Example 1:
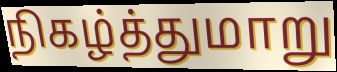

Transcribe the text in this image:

நிகழ்த்துமாறு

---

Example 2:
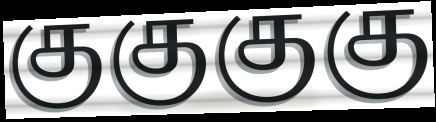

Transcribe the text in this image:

குகுகுகு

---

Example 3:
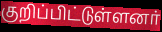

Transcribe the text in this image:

குறிப்பிட்டுள்ளனர்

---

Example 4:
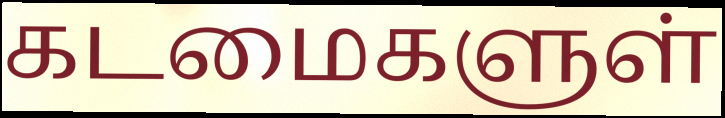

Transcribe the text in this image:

கடமைகளுள்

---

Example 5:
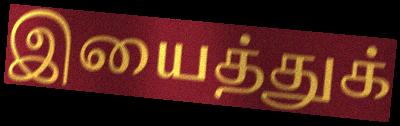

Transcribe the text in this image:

இயைத்துக்